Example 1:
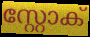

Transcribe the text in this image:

സ്റ്റോക്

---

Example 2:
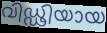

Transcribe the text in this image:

വിഡ്ഢിയായ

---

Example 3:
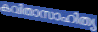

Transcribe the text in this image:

കവിതാസാഹിത്യ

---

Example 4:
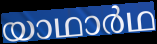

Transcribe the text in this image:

യാഥാർഥ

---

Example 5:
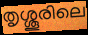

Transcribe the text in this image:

തൃശ്ശൂരിലെ